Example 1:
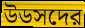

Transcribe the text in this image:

উডসদের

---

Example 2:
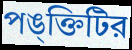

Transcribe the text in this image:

পঙ্‌ক্তিটির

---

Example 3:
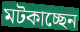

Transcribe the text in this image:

মটকাচ্ছেন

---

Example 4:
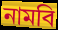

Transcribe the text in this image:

নামবি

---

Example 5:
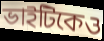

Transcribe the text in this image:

ভাইটিকেও